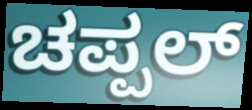
ಚಪ್ಪಲ್